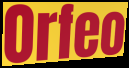
Orfeo